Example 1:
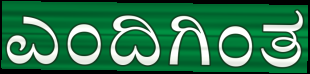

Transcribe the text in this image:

ಎಂದಿಗಿಂತ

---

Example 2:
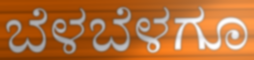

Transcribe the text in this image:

ಬೆಳಬೆಳಗೂ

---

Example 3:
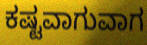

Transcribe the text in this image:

ಕಷ್ಟವಾಗುವಾಗ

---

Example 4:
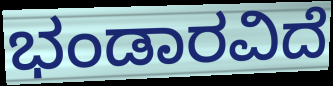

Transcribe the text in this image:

ಭಂಡಾರವಿದೆ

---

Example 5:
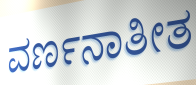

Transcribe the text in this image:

ವರ್ಣನಾತೀತ